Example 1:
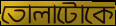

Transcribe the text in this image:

তোলাটোকে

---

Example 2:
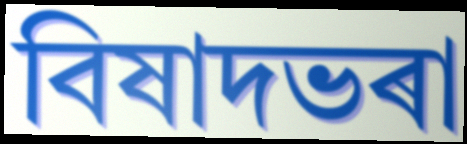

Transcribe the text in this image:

বিষাদভৰা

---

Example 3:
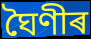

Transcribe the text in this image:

ঘৈণীৰ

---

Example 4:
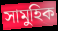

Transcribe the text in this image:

সামুহিক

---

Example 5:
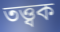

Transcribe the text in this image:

তত্ত্বক